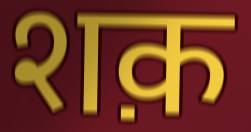
शक़